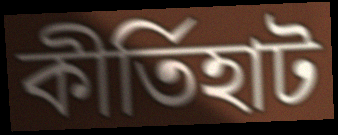
কীর্তিহাট